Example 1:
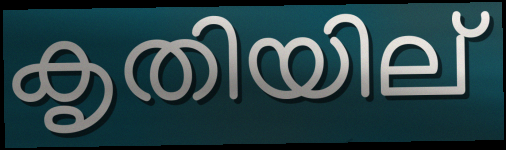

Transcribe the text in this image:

കൃതിയില്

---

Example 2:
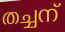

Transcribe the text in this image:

തച്ചന്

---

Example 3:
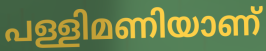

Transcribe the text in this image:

പള്ളിമണിയാണ്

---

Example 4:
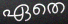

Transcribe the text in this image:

ഏതെ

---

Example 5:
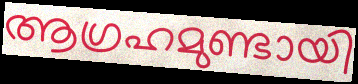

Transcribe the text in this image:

ആഗ്രഹമുണ്ടായി